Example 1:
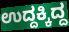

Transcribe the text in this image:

ಉದ್ದಕ್ಕಿದ್ದ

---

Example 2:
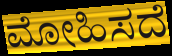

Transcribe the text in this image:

ಮೋಹಿಸದೆ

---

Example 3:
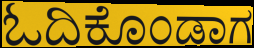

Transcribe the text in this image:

ಓದಿಕೊಂಡಾಗ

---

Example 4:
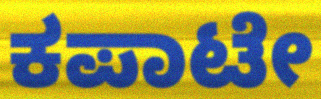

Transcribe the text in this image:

ಕಪಾಟೇ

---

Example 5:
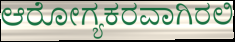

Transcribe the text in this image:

ಆರೋಗ್ಯಕರವಾಗಿರಲಿ